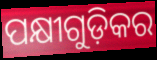
ପକ୍ଷୀଗୁଡ଼ିକର